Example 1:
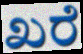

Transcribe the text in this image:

ಖರೆ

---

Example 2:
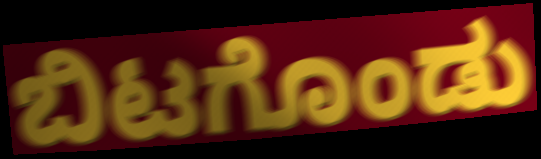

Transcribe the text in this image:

ಬಿಟಗೊಂಡು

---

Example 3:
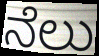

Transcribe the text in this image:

ನೆಲು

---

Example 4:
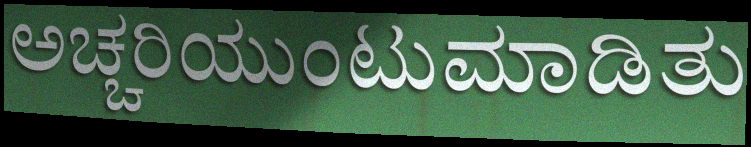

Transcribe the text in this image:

ಅಚ್ಚರಿಯುಂಟುಮಾಡಿತು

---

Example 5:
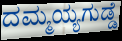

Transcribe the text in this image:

ದಮ್ಮಯ್ಯಗುಡ್ಡೆ